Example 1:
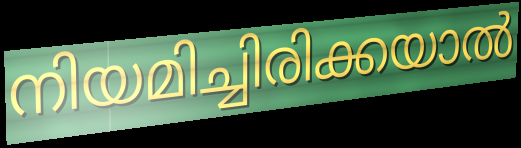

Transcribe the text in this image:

നിയമിച്ചിരിക്കയാൽ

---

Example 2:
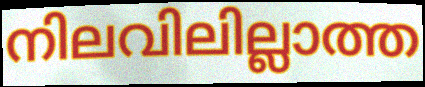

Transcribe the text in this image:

നിലവിലില്ലാത്ത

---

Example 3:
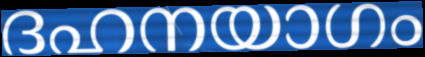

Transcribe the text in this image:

ദഹനയാഗം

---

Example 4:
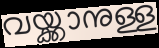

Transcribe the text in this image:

വയ്ക്കാനുള്ള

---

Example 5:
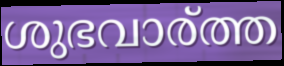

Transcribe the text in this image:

ശുഭവാര്ത്ത